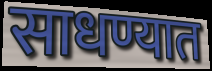
साधण्यात